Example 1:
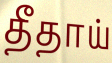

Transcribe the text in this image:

தீதாய்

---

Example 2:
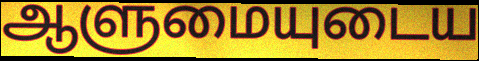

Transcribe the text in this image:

ஆளுமையுடைய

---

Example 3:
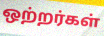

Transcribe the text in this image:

ஒற்றர்கள்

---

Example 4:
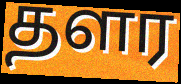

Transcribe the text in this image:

தளர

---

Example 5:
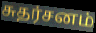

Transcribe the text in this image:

சுதர்சனம்